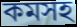
কমসহ